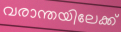
വരാന്തയിലേക്ക്